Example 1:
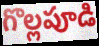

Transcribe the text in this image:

గొల్లపూడి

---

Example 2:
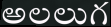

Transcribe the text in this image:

అలలుగ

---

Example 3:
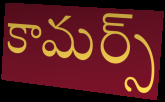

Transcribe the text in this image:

కామర్స్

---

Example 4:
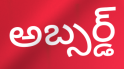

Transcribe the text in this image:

అబ్సర్డ్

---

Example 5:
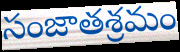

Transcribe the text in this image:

సంజాతశ్రమం